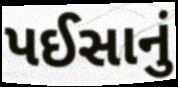
પઈસાનું